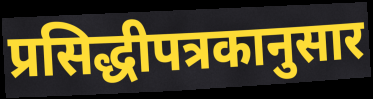
प्रसिद्धीपत्रकानुसार